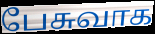
பேசுவாக